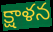
క్షాళన